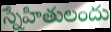
స్నేహితులందు